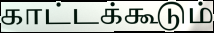
காட்டக்கூடும்